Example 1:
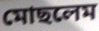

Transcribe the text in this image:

মোছলেম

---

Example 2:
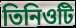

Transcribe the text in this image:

তিনিওটি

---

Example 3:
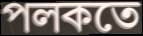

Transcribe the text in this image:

পলকতে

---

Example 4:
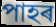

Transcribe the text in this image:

পাহৰ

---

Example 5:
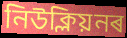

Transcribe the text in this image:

নিউক্লিয়নৰ